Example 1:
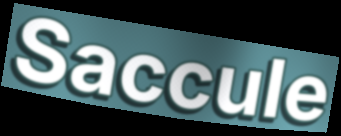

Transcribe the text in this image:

Saccule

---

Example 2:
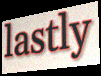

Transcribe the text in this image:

lastly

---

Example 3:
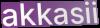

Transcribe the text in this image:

akkasii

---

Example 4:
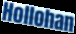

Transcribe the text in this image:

Hollohan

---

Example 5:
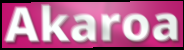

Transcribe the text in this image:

Akaroa